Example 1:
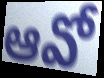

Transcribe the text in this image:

ఆవో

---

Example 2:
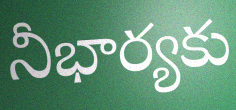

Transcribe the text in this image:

నీభార్యకు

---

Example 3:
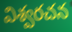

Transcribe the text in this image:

విశ్వరచన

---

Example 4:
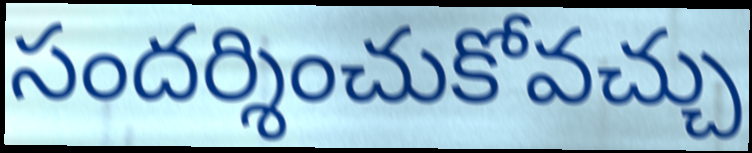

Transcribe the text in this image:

సందర్శించుకోవచ్చు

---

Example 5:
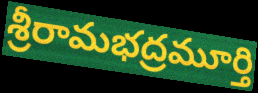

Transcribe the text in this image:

శ్రీరామభద్రమూర్తి